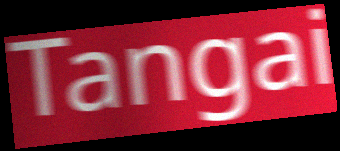
Tangai